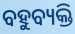
ବହୁବ୍ୟକ୍ତି